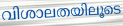
വിശാലതയിലൂടെ